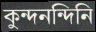
কুন্দনন্দিনি